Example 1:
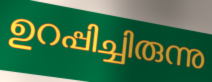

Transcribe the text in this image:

ഉറപ്പിച്ചിരുന്നു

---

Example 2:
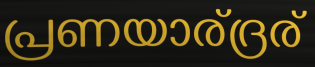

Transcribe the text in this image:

പ്രണയാര്ദ്രര്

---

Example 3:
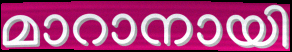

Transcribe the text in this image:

മാറാനായി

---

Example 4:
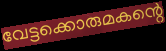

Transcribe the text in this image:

വേട്ടക്കൊരുമകന്റെ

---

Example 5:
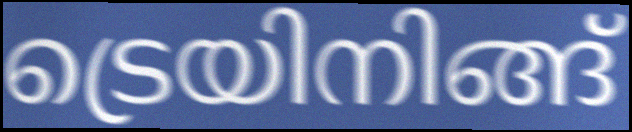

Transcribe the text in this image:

ട്രെയിനിങ്ങ്